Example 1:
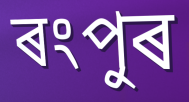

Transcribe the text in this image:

ৰংপুৰ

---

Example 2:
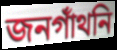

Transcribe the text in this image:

জনগাঁথনি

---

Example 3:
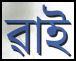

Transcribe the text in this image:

ৱাই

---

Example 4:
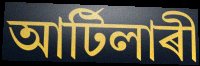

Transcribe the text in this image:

আৰ্টিলাৰী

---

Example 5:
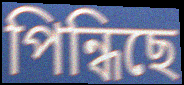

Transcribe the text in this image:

পিন্ধিছে